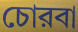
চোরবা